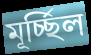
মূর্চ্ছিল